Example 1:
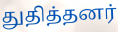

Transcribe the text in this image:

துதித்தனர்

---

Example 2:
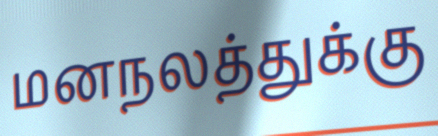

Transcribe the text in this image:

மனநலத்துக்கு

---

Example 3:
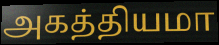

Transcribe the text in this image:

அகத்தியமா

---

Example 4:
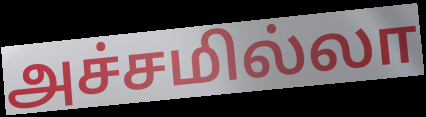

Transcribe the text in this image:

அச்சமில்லா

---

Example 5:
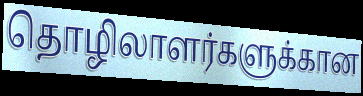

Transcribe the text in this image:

தொழிலாளர்களுக்கான